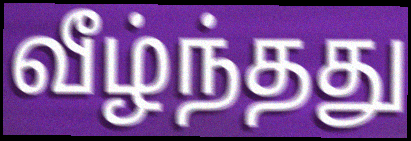
வீழ்ந்தது